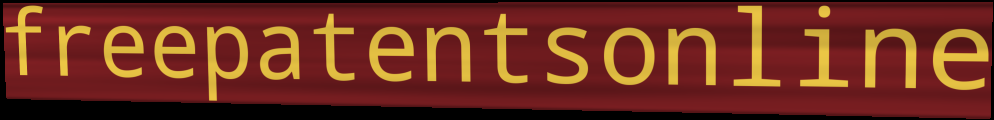
freepatentsonline